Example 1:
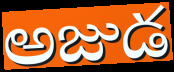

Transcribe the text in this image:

అజుడ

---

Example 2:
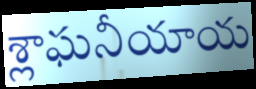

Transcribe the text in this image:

శ్లాఘనీయాయ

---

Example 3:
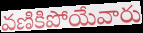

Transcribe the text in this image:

వణికిపోయేవారు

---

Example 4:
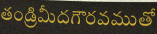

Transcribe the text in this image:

తండ్రిమీదగౌరవముతో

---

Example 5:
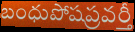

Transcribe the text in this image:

బంధుపోషప్రవర్తీ